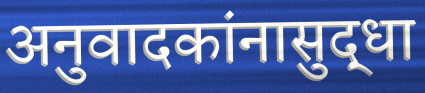
अनुवादकांनासुद्धा